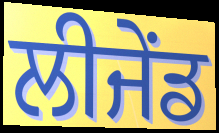
ਲੀਜੇਂਡ